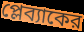
প্লেব্যাকের